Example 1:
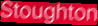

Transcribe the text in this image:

Stoughton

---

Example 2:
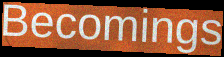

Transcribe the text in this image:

Becomings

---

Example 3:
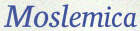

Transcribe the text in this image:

Moslemica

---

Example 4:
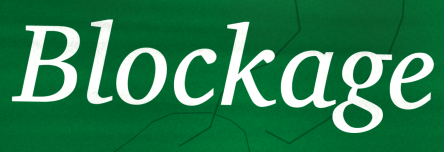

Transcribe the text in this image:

Blockage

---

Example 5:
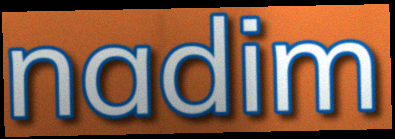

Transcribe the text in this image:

nadim